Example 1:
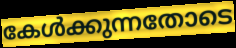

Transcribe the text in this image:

കേൾക്കുന്നതോടെ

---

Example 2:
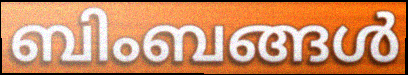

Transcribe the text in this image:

ബിംബങ്ങൾ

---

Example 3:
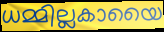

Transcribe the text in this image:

ധമ്മില്ലകായൈ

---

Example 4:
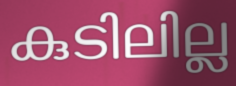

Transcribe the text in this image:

കുടിലില്ല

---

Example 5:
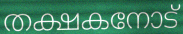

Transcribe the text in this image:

തക്ഷകനോട്